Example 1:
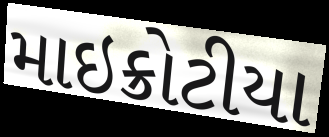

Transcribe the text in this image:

માઇક્રોટીયા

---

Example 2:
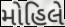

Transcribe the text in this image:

મોહિલે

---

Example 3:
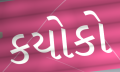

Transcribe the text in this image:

કયોકો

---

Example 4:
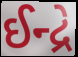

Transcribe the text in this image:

ઈન્દ્રે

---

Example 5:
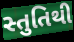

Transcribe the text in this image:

સ્તુતિથી